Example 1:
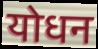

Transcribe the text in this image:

योधन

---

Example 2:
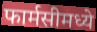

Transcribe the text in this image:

फार्मसीमध्ये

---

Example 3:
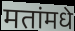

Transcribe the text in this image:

मतांमधे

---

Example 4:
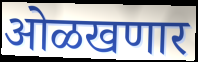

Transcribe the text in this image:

ओळखणार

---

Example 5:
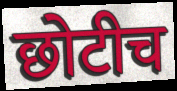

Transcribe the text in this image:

छोटीच